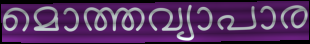
മൊത്തവ്യാപാര